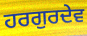
ਹਰਗੁਰਦੇਵ